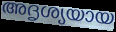
അദൃശ്യയായ